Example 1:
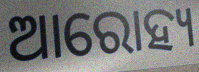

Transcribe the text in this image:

ଆରୋହ୍ୟ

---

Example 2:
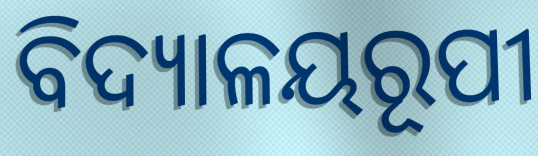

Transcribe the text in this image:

ବିଦ୍ୟାଳୟରୂପୀ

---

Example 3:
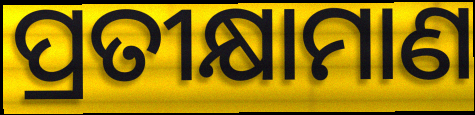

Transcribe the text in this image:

ପ୍ରତୀକ୍ଷାମାଣ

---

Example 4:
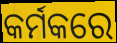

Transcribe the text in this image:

କର୍ମକରେ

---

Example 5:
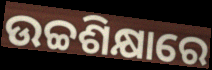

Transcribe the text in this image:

ଉଚ୍ଚଶିକ୍ଷାରେ